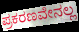
ಪ್ರಕರಣವೇನಲ್ಲ